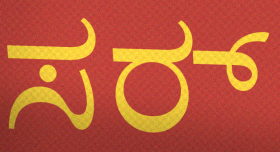
ಸರ‍್